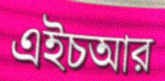
এইচআর